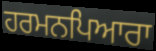
ਹਰਮਨਪਿਆਰਾ